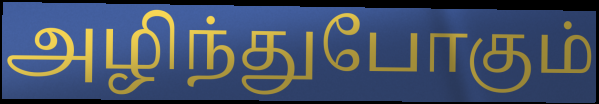
அழிந்துபோகும்